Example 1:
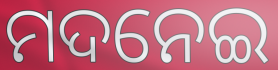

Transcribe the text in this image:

ମଦନେଇ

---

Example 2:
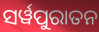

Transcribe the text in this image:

ସର୍ୱପୁରାତନ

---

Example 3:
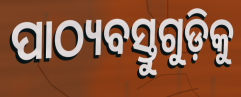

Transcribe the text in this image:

ପାଠ୍ୟବସ୍ତୁଗୁଡ଼ିକୁ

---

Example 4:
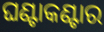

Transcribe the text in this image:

ଘଣ୍ଟାକଣ୍ଟାର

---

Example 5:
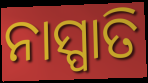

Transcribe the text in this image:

ନାସ୍ପାତି